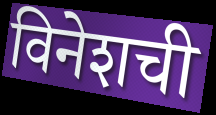
विनेशची